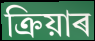
ক্ৰিয়াৰ